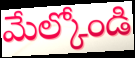
మేల్కోండి